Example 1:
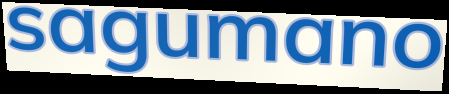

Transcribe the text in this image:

sagumano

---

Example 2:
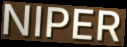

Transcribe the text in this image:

NIPER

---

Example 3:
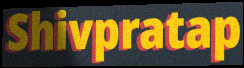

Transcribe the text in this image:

Shivpratap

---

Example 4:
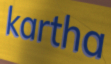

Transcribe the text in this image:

kartha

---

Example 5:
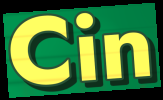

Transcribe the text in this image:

Cin